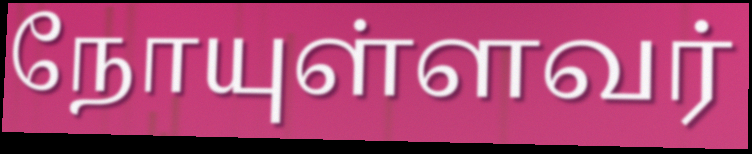
நோயுள்ளவர்